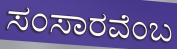
ಸಂಸಾರವೆಂಬ